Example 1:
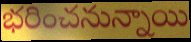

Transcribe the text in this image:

భరించనున్నాయి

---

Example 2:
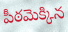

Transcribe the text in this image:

పీఠమెక్కిన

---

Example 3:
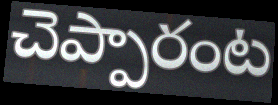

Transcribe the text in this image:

చెప్పారంట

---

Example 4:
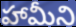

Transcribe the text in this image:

హామీని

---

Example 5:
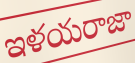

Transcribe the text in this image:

ఇళయరాజా